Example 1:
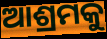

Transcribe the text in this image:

ଆଶ୍ରମକୁ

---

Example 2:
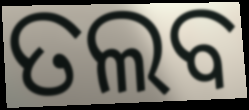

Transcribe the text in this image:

ତଲବ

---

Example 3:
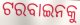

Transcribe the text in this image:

ଟରବାଇନକୁ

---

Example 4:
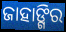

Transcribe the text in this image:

ଜାହାଙ୍ଗିର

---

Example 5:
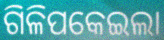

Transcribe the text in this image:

ଗିଳିପକେଇଲା